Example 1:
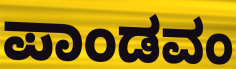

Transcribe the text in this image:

ಪಾಂಡವಂ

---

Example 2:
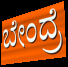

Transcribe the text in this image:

ಬೇಂದ್ರೆ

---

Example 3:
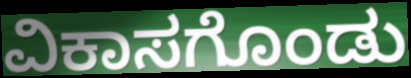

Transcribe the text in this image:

ವಿಕಾಸಗೊಂಡು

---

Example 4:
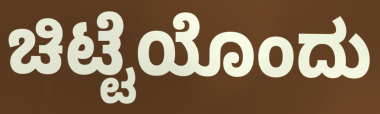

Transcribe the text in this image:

ಚಿಟ್ಟೆಯೊಂದು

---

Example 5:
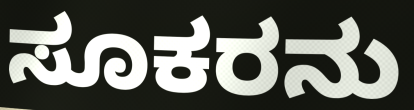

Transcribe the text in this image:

ಸೂಕರನು